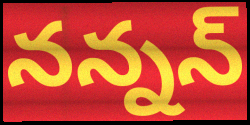
నన్నన్